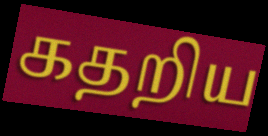
கதறிய